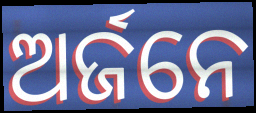
ଅର୍ଜନେ